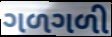
ગળગળી